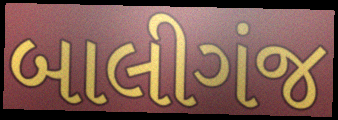
બાલીગંજ